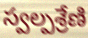
స్వల్పశ్రేణి